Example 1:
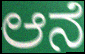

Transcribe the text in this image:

ಆನೆ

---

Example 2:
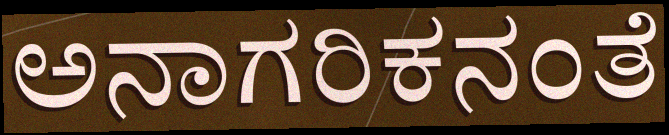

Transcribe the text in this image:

ಅನಾಗರಿಕನಂತೆ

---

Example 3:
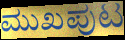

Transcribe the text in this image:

ಮುಖಪುಟ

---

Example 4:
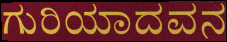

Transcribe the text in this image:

ಗುರಿಯಾದವನ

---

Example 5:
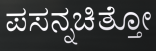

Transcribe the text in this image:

ಪಸನ್ನಚಿತ್ತೋ